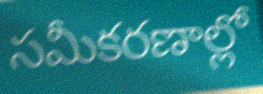
సమీకరణాల్లో